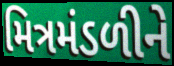
મિત્રમંડળીને